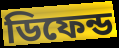
ডিফেন্ড